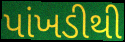
પાંખડીથી